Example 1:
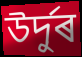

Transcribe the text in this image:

উৰ্দুৰ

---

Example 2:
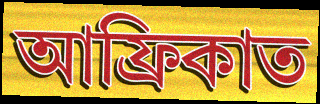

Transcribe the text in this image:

আফ্ৰিকাত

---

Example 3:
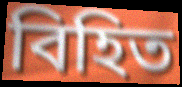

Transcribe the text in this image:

বিহিত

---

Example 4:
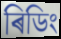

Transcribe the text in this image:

ৰিডিং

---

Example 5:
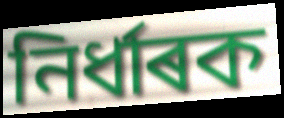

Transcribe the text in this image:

নিৰ্ধাৰক